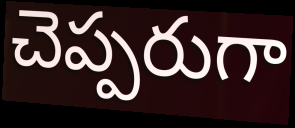
చెప్పరుగా